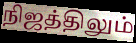
நிஜத்திலும்